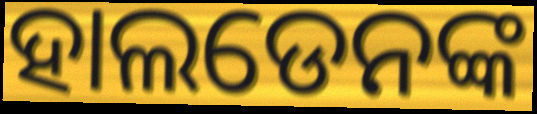
ହାଲଡେନଙ୍କ